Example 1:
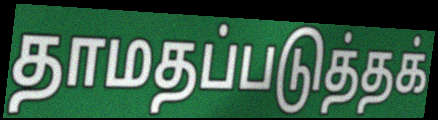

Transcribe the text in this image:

தாமதப்படுத்தக்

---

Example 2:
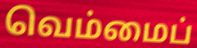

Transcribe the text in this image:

வெம்மைப்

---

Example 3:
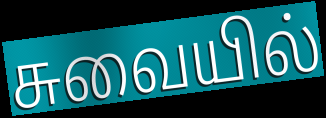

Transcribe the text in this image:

சுவையில்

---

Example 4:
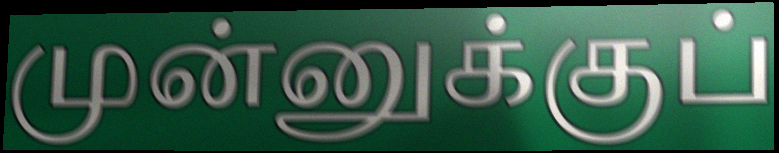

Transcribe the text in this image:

முன்னுக்குப்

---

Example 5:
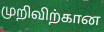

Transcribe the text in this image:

முறிவிற்கான